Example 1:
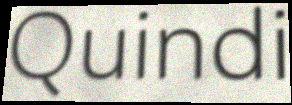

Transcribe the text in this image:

Quindi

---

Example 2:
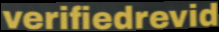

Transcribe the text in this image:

verifiedrevid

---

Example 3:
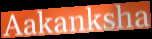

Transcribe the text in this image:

Aakanksha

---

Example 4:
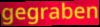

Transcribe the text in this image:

gegraben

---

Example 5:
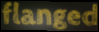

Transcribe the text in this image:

flanged